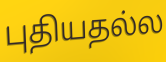
புதியதல்ல